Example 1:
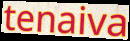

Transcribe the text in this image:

tenaiva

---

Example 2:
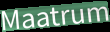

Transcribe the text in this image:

Maatrum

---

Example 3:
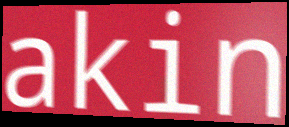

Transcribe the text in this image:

akin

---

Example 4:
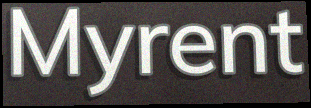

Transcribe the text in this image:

Myrent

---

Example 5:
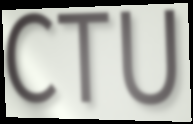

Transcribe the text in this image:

CTU